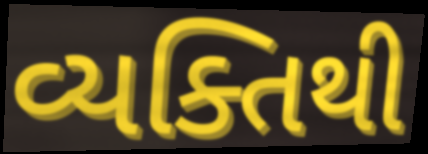
વ્યક્તિથી